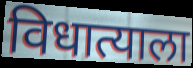
विधात्याला